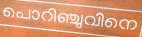
പൊറിഞ്ചുവിനെ